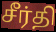
சீர்தி